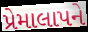
પ્રેમાલાપને